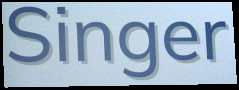
Singer